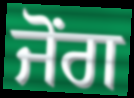
ਜੋਂਗ